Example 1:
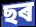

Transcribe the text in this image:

ছৰ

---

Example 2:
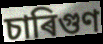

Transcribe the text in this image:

চাৰিগুণ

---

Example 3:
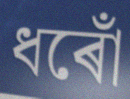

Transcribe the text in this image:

ধৰোঁ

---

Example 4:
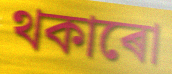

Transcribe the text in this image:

থকাৰো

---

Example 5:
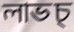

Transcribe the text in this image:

লাভচ্